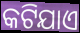
କଟିଯାଏ